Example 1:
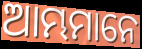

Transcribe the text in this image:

ଆମ୍ଭମାନେ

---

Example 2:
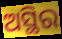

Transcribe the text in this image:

ଅସ୍ଥିର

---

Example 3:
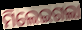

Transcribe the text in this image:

ମିଲେଇଗଲା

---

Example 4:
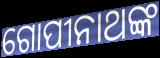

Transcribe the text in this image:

ଗୋପୀନାଥଙ୍କ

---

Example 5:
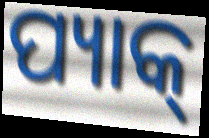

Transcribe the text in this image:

ପ୍ୟାକ୍